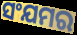
ସଂଯମର